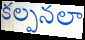
కల్పనలా